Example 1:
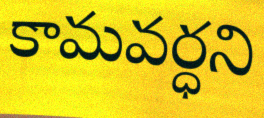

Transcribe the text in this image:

కామవర్ధని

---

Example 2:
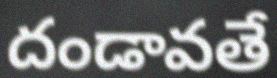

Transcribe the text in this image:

దండావతే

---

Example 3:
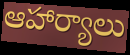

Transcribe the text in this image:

ఆహార్యాలు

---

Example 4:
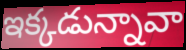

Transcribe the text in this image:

ఇక్కడున్నావా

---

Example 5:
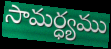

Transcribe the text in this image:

సామర్ధ్యము